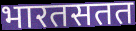
भारतसतत